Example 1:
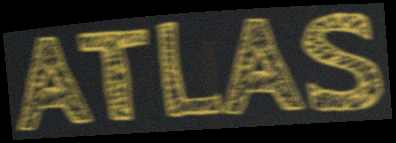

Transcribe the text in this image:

ATLAS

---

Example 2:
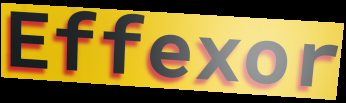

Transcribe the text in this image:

Effexor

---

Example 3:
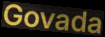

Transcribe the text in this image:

Govada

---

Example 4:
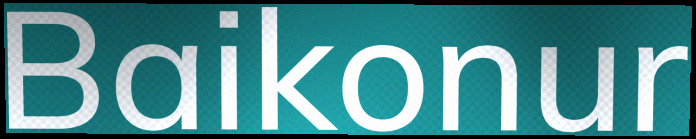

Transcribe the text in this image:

Baikonur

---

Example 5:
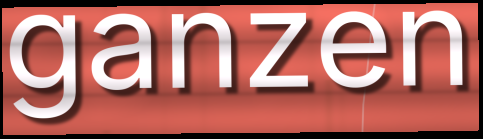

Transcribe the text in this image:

ganzen